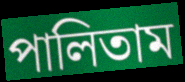
পালিতাম